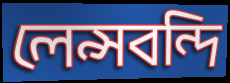
লেন্সবন্দি